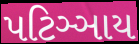
પટિઞ્ઞાય